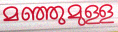
മഞ്ഞുമുള്ള